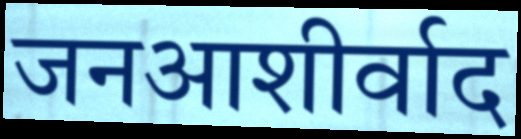
जनआशीर्वाद